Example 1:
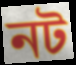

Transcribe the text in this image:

নট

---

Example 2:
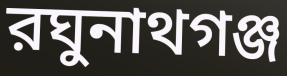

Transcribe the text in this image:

রঘুনাথগঞ্জ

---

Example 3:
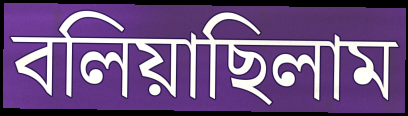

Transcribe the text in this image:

বলিয়াছিলাম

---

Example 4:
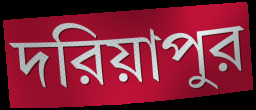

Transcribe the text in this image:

দরিয়াপুর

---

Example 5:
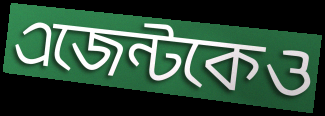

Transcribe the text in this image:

এজেন্টকেও